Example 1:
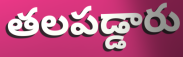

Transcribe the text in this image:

తలపడ్డారు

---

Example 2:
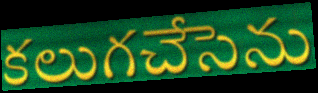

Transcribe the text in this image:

కలుగచేసెను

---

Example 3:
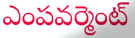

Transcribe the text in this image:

ఎంపవర్మెంట్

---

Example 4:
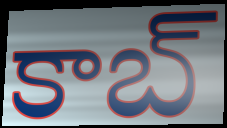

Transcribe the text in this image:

కాబ్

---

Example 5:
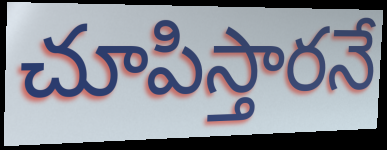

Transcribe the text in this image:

చూపిస్తారనే